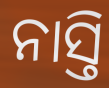
ନାସ୍ତି